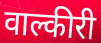
वाल्कीरी